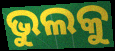
ଭୁଲକୁ